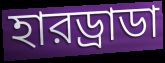
হারড্রাডা